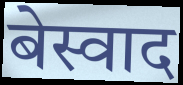
बेस्वाद